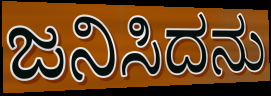
ಜನಿಸಿದನು